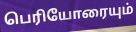
பெரியோரையும்